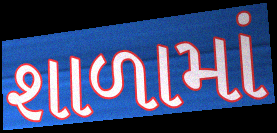
શાળામાં